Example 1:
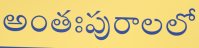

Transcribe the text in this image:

అంతఃపురాలలో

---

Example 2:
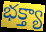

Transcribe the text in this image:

భక్త్యా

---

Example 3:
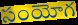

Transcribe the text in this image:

సంయోగ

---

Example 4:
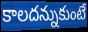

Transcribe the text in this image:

కాలదన్నుకుంటే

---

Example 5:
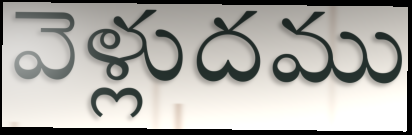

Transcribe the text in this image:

వెళ్లుదము